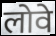
लोवे